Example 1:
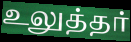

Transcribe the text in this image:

உலுத்தர்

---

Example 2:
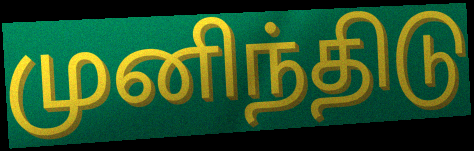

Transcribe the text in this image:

முனிந்திடு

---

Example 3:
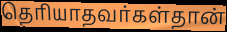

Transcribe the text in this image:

தெரியாதவர்கள்தான்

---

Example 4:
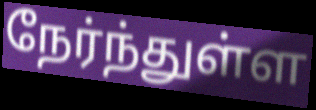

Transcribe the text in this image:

நேர்ந்துள்ள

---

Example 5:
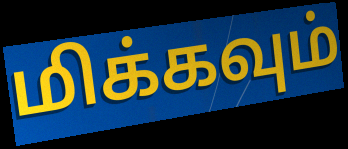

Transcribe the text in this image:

மிக்கவும்